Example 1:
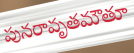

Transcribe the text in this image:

పునరావృతమౌతూ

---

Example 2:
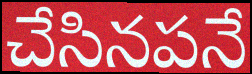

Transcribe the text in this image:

చేసినపనే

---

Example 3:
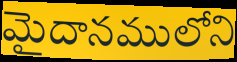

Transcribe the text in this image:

మైదానములోని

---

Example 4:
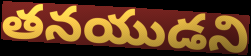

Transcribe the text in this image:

తనయుడని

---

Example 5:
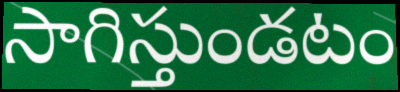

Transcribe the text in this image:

సాగిస్తుండటం